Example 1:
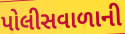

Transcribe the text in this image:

પોલીસવાળાની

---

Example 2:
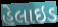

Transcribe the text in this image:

હેલાઇડ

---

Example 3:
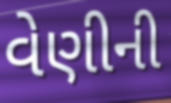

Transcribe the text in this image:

વેણીની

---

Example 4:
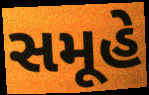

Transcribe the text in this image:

સમૂહે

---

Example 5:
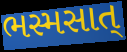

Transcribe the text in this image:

ભસ્મસાત્